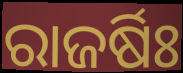
ରାଜର୍ଷିଃ